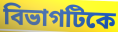
বিভাগটিকে